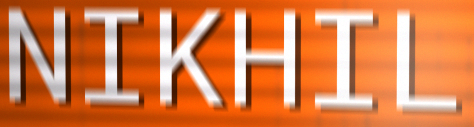
NIKHIL